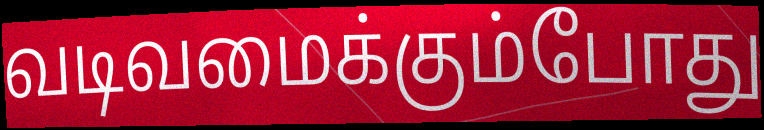
வடிவமைக்கும்போது